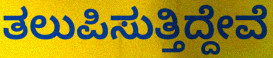
ತಲುಪಿಸುತ್ತಿದ್ದೇವೆ